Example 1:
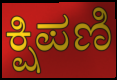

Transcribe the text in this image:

ಕ್ಷಿಪಣಿ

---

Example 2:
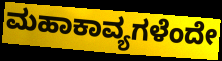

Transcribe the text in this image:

ಮಹಾಕಾವ್ಯಗಳೆಂದೇ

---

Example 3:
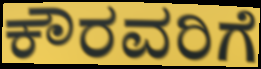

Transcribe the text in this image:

ಕೌರವರಿಗೆ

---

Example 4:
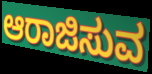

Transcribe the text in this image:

ಆರಾಜಿಸುವ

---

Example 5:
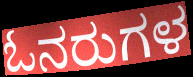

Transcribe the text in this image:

ಓನರುಗಳ